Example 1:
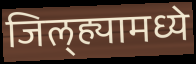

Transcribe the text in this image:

जिल्ह्यामध्ये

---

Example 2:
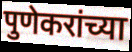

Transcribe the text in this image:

पुणेकरांच्या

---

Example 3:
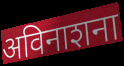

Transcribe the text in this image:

अविनाशना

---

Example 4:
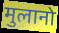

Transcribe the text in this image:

मुलानो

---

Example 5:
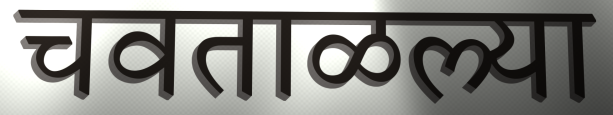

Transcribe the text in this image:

चवताळल्या